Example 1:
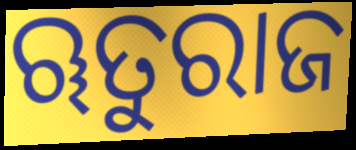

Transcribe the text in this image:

ୠତୁରାଜ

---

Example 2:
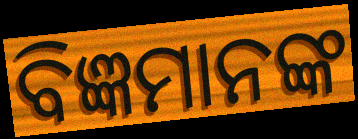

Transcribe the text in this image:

ବିଜ୍ଞମାନଙ୍କ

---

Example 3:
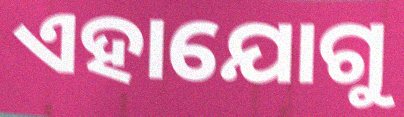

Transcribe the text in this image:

ଏହାଯୋଗୁ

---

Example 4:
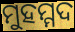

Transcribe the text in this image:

ମୁହମ୍ମଦ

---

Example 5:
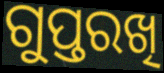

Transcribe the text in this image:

ଗୁପ୍ତରଖି